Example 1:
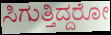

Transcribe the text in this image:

ಸಿಗುತ್ತಿದ್ದರೋ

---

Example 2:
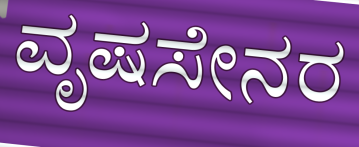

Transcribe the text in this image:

ವೃಷಸೇನರ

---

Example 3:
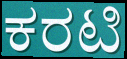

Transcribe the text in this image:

ಕರಟಿ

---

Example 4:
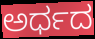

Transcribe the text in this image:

ಅರ್ಧದ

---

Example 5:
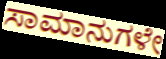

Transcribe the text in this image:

ಸಾಮಾನುಗಳೇ